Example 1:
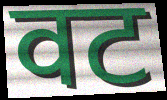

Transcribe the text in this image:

वट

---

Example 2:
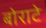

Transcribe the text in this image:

बोराटे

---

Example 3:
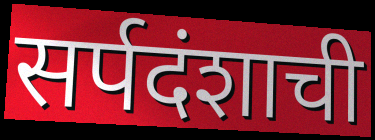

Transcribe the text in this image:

सर्पदंशाची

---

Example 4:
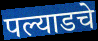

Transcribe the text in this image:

पल्याडचे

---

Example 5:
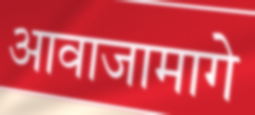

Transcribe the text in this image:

आवाजामागे